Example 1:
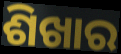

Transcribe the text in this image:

ଶିଖାର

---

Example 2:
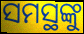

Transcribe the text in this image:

ସମସ୍ଥଙ୍କୁ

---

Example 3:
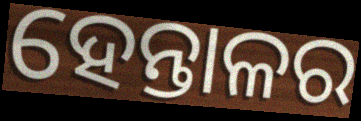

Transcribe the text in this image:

ହେନ୍ତାଳର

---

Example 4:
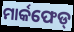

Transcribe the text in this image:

ମାର୍କଫେଡ୍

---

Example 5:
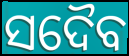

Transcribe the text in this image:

ସଦୈବ